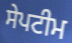
ਸੇਪਟੀਮ